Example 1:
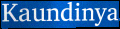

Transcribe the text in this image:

Kaundinya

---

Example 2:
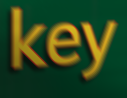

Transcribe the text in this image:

key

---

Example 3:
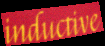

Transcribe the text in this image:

inductive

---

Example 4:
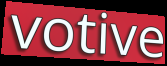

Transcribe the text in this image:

votive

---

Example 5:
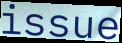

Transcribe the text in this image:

issue